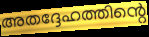
അതദ്ദേഹത്തിന്റെ